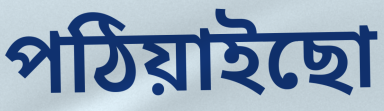
পঠিয়াইছো